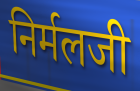
निर्मलजी